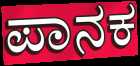
ಪಾನಕ